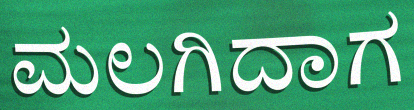
ಮಲಗಿದಾಗ